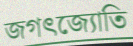
জগৎজ্যোতি